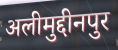
अलीमुद्दीनपुर